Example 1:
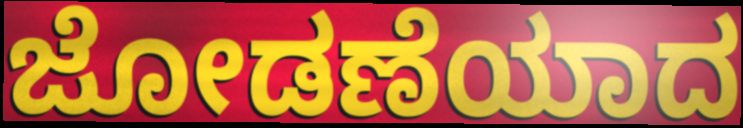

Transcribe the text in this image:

ಜೋಡಣೆಯಾದ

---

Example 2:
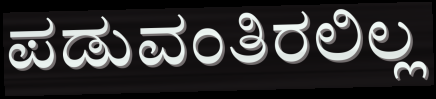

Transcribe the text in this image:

ಪಡುವಂತಿರಲಿಲ್ಲ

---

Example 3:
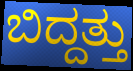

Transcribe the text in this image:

ಬಿದ್ದತ್ತು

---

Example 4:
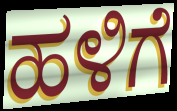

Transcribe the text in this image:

ಹಳಿಗೆ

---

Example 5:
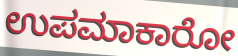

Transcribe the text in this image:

ಉಪಮಾಕಾರೋ